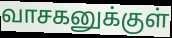
வாசகனுக்குள்